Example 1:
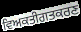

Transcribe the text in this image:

ਵਿਅਕਤੀਗਤਕਰਣ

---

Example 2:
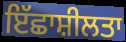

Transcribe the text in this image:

ਇੱਛਾਸ਼ੀਲਤਾ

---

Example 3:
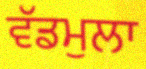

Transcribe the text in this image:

ਵੱਡਮੁਲਾ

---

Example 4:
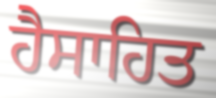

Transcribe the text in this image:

ਹੈਸਾਹਿਤ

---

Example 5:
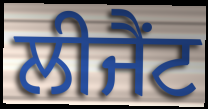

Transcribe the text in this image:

ਲੀਜੈਂਟ